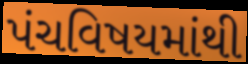
પંચવિષયમાંથી